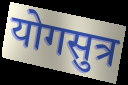
योगसुत्र